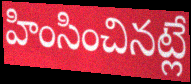
హింసించినట్లే